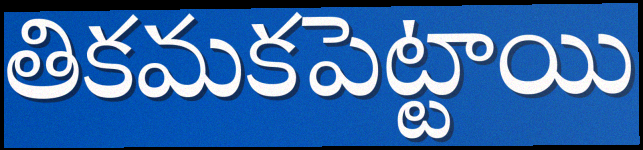
తికమకపెట్టాయి